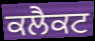
ਕਲੈਕਟ